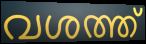
വശത്ത്